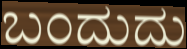
ಬಂದುದು